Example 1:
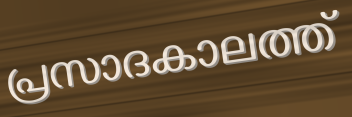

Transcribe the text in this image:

പ്രസാദകാലത്ത്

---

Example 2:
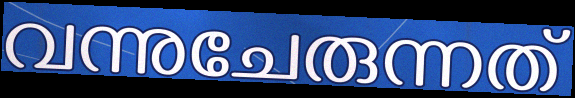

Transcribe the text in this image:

വന്നുചേരുന്നത്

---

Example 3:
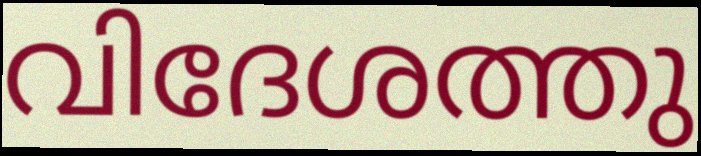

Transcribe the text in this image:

വിദേശത്തു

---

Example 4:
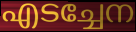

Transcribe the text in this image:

എടച്ചേന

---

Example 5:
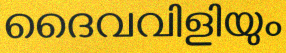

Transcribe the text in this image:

ദൈവവിളിയും